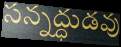
సన్నద్ధుడవు